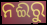
ନଈରୁ